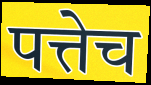
पत्तेच